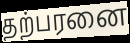
தற்பரனை